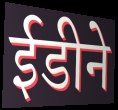
ईडीने